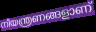
നിയന്ത്രണങ്ങളാണ്